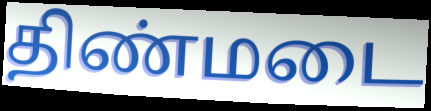
திண்மடை